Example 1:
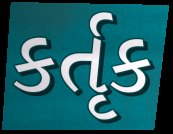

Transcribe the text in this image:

કર્તૃક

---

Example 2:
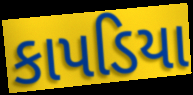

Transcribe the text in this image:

કાપડિયા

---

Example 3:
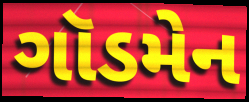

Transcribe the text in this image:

ગૉડમેન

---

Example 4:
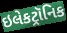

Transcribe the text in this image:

ઇલેકટ્રૉનિક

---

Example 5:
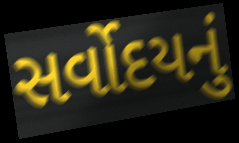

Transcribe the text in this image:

સર્વોદયનું